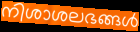
നിശാശലഭങ്ങൾ